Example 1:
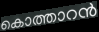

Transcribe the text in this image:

കൊത്താറൻ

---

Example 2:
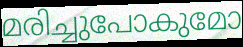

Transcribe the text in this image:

മരിച്ചുപോകുമോ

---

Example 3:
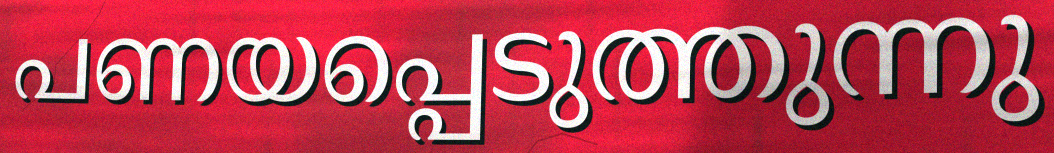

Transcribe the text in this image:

പണയപ്പെടുത്തുന്നു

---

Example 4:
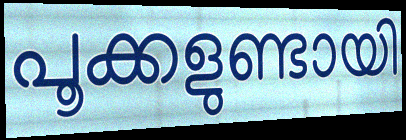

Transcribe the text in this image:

പൂക്കളുണ്ടായി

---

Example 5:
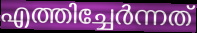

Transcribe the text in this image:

എത്തിച്ചേർന്നത്